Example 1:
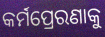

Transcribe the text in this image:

କର୍ମପ୍ରେରଣାକୁ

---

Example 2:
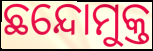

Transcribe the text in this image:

ଛନ୍ଦୋମୁକ୍ତ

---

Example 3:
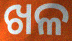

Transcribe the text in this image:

ଖଳ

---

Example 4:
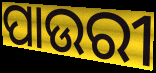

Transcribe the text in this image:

ପାଉରୀ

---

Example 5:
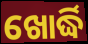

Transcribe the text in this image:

ଖୋର୍ଦ୍ଧି